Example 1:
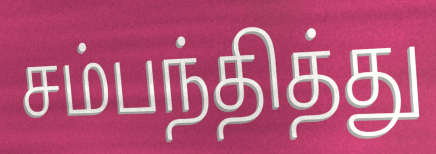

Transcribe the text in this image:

சம்பந்தித்து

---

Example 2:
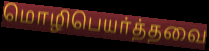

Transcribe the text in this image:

மொழிபெயர்த்தவை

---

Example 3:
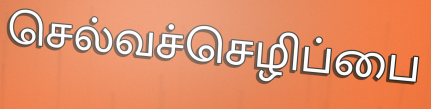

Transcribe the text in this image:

செல்வச்செழிப்பை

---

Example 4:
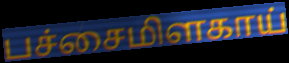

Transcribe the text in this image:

பச்சைமிளகாய்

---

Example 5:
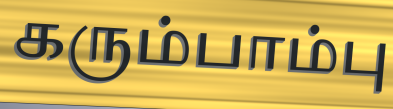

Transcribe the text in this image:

கரும்பாம்பு